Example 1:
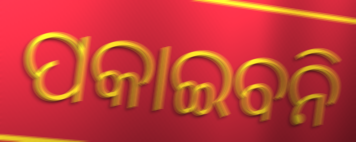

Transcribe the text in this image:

ପକାଇବନି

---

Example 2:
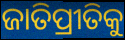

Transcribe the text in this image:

ଜାତିପ୍ରୀତିକୁ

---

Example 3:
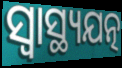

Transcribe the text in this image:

ସ୍ୱାସ୍ଥ୍ୟଯତ୍ନ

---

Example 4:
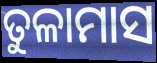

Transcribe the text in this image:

ତୁଳାମାସ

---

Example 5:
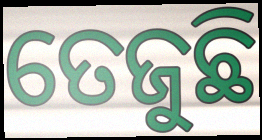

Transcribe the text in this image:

ତେଜୁଛି